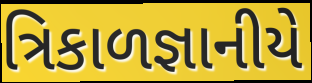
ત્રિકાળજ્ઞાનીયે